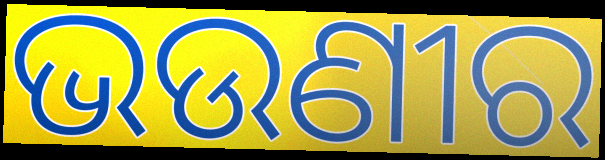
ଭଉଣୀର